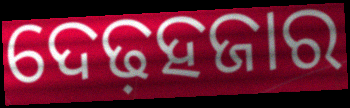
ଦେଢ଼ହଜାର